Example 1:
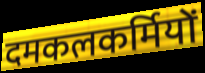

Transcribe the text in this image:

दमकलकर्मियों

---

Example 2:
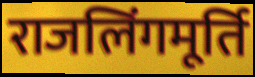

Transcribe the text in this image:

राजलिंगमूर्ति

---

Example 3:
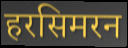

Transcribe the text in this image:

हरसिमरन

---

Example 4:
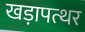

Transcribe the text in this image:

खड़ापत्थर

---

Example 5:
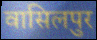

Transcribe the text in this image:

वासिलपुर